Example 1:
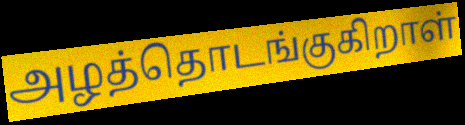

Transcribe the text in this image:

அழத்தொடங்குகிறாள்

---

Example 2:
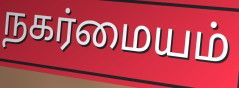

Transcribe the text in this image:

நகர்மையம்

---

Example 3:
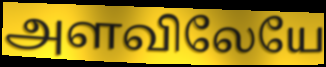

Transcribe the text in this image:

அளவிலேயே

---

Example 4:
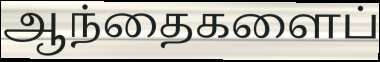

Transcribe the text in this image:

ஆந்தைகளைப்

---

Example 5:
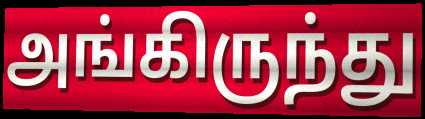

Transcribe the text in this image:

அங்கிருந்து